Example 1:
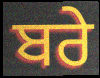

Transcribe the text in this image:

ਬਰੇ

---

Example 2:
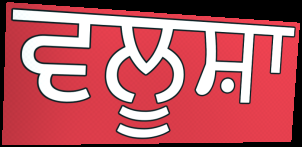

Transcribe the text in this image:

ਵਲੂਸ਼ਾ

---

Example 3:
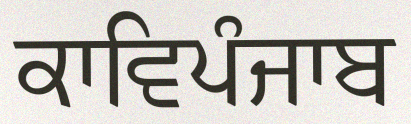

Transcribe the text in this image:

ਕਾਵਿਪੰਜਾਬ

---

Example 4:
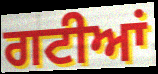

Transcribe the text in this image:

ਗਟੀਆਂ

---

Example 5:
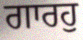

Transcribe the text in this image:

ਗਾਰਹੁ